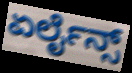
ಏರ್ಲೈನ್ಸ್